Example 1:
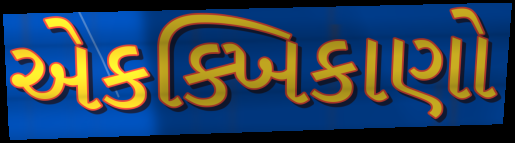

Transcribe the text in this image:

એકક્ખિકાણો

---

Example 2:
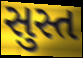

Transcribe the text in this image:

સુસ્ત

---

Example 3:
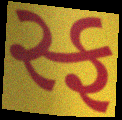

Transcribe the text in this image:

સ્ફ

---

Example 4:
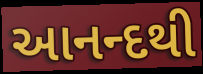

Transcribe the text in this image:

આનન્દથી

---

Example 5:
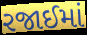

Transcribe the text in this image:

રજાઈમાં